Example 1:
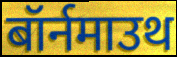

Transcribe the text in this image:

बॉर्नमाउथ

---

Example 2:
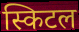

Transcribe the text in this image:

स्किटल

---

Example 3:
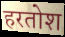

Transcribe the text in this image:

हरतोश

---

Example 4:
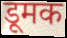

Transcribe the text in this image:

डूमक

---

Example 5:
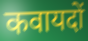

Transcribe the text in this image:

कवायदों